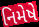
નિમેષે